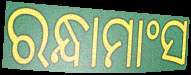
ରନ୍ଧାମାଂସ